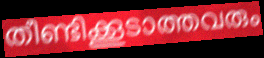
തീണ്ടിക്കൂടാത്തവരും